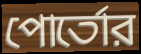
পোর্তোর